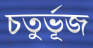
চতুৰ্ভূজ